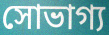
সোভাগ্য